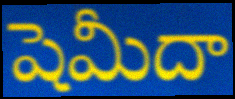
షెమీదా